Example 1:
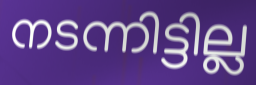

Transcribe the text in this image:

നടന്നിട്ടില്ല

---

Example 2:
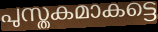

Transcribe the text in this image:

പുസ്തകമാകട്ടെ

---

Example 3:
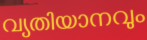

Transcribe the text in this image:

വ്യതിയാനവും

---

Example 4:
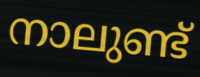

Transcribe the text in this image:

നാലുണ്ട്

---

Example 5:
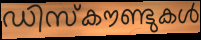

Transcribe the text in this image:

ഡിസ്കൗണ്ടുകൾ